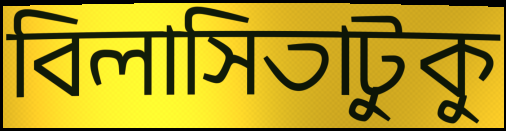
বিলাসিতাটুকু